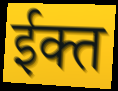
ईक्त